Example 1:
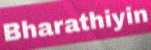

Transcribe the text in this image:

Bharathiyin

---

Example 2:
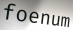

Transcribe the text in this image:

foenum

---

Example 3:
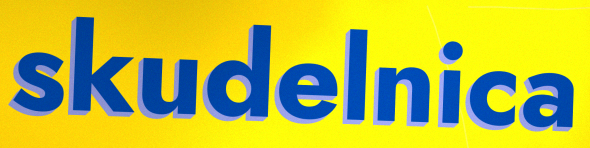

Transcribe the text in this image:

skudelnica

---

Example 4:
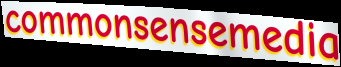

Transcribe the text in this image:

commonsensemedia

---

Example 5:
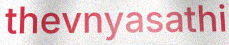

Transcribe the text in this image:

thevnyasathi